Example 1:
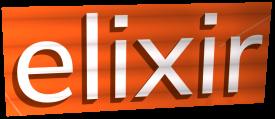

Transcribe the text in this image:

elixir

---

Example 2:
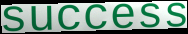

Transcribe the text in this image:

success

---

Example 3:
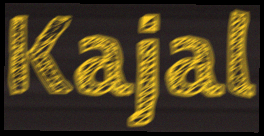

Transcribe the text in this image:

Kajal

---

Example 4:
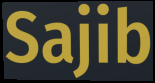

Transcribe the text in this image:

Sajib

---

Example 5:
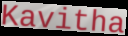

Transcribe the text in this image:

Kavitha